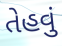
તેહવું